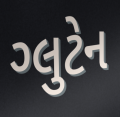
ગ્લુટેન